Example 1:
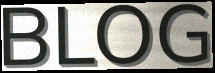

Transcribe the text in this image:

BLOG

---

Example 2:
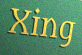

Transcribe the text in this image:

Xing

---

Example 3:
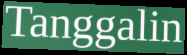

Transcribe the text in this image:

Tanggalin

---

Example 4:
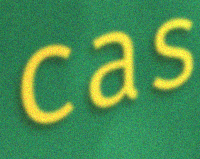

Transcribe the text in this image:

cas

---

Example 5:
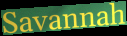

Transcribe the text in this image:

Savannah